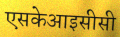
एसकेआइसीसी